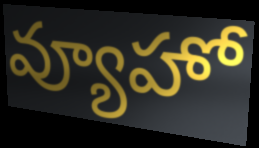
వ్యూహో